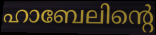
ഹാബേലിന്റെ